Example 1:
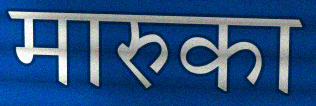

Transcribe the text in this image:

मारुका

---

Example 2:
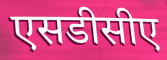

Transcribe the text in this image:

एसडीसीए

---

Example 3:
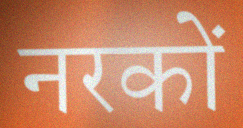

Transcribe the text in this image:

नरकों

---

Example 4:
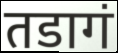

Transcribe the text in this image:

तडागं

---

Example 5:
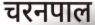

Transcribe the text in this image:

चरनपाल